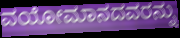
ವಯೋಮಾನದವರನ್ನು